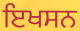
ਇਖਸਨ